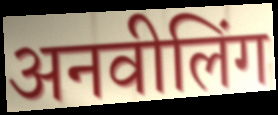
अनवीलिंग